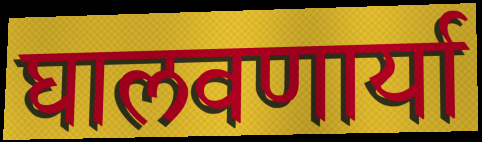
घालवणार्या